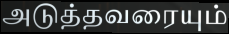
அடுத்தவரையும்